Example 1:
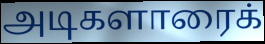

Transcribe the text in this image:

அடிகளாரைக்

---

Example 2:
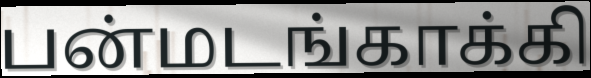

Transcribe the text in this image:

பன்மடங்காக்கி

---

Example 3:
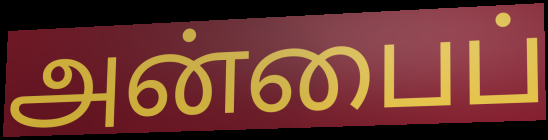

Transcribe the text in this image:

அன்பைப்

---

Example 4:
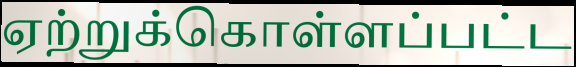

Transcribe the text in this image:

ஏற்றுக்கொள்ளப்பட்ட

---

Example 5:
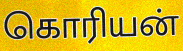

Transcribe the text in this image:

கொரியன்